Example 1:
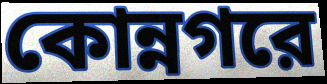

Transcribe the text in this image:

কোন্নগরে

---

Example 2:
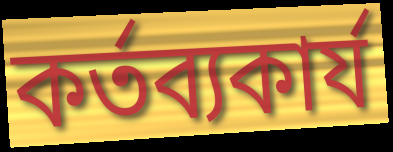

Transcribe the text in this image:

কর্তব্যকার্য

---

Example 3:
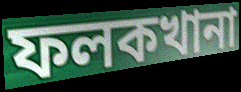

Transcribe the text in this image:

ফলকখানা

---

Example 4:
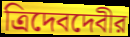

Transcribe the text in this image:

ত্রিদেবদেবীর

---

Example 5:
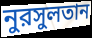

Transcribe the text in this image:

নুরসুলতান